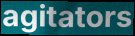
agitators